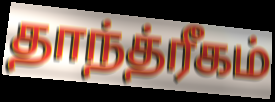
தாந்த்ரீகம்